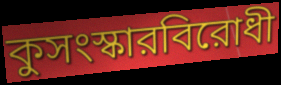
কুসংস্কারবিরোধী